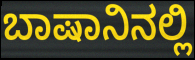
ಬಾಷಾನಿನಲ್ಲಿ